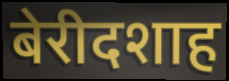
बेरीदशाह